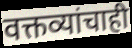
वक्तव्यांचाही